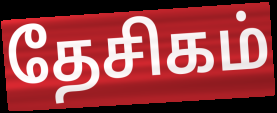
தேசிகம்